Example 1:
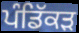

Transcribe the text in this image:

ਪੰਡਿੱਕੜ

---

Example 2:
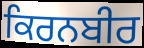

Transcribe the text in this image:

ਕਿਰਨਬੀਰ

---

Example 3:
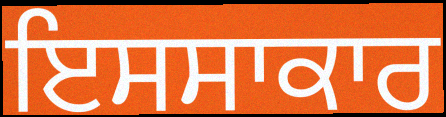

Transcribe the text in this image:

ਇਸਸਾਕਾਰ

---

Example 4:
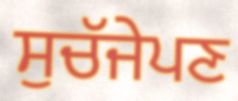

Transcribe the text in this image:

ਸੁਚੱਜੇਪਣ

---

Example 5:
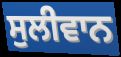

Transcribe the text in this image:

ਸੁਲੀਵਾਨ